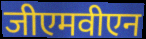
जीएमवीएन